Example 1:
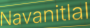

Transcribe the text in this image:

Navanitlal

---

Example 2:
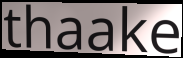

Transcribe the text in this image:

thaake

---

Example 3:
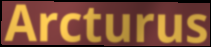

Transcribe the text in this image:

Arcturus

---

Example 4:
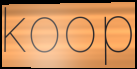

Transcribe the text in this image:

koop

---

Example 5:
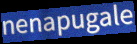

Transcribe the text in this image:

nenapugale